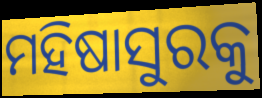
ମହିଷାସୁରକୁ